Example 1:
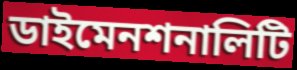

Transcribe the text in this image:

ডাইমেনশনালিটি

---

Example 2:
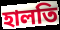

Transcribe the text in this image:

হালতি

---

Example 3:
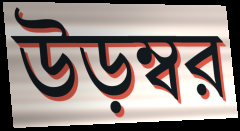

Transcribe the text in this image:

উড়ম্বর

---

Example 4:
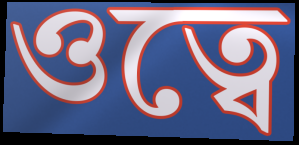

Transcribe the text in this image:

ওত্বে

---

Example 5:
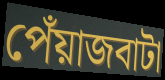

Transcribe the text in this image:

পেঁয়াজবাটা